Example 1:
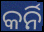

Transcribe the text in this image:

କର୍ନି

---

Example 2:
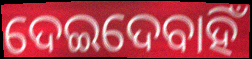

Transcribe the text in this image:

ଦେଇଦେବାହିଁ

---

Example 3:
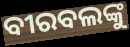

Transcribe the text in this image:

ବୀରବଲଙ୍କୁ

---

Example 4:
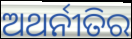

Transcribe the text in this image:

ଅଥର୍ନୀତିର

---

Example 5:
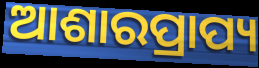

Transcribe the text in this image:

ଆଶାରପ୍ରାପ୍ୟ